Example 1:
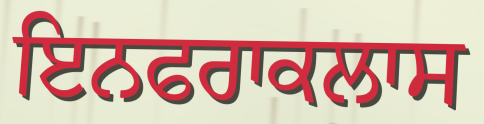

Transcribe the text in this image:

ਇਨਫਰਾਕਲਾਸ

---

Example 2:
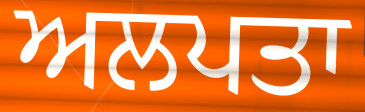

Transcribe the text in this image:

ਅਲਪਤਾ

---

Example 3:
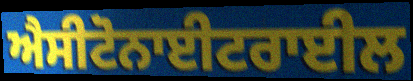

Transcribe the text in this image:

ਐਸੀਟੋਨਾਈਟਰਾਈਲ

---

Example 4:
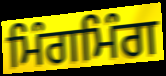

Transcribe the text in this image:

ਮਿੰਗਮਿੰਗ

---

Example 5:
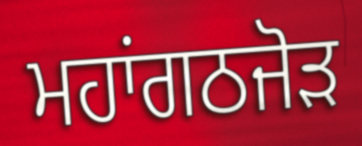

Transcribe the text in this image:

ਮਹਾਂਗਠਜੋਡ਼